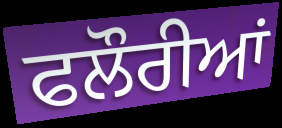
ਫਲੌਰੀਆਂ